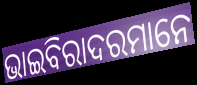
ଭାଇବିରାଦରମାନେ